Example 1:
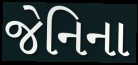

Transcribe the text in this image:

જેનિના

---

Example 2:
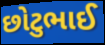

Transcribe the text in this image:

છોટુભાઈ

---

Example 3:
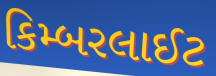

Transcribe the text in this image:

કિમ્બરલાઈટ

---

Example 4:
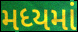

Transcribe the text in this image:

મધ્યમાં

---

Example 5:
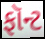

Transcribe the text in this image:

ફૉન્ટ